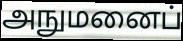
அநுமனைப்